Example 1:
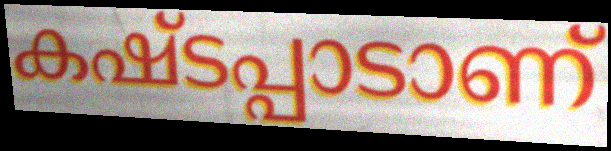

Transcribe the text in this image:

കഷ്ടപ്പാടാണ്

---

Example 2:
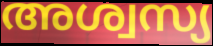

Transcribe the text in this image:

അശ്വസ്യ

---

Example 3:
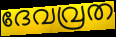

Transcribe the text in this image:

ദേവവ്രത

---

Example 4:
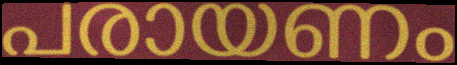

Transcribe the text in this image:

പരായണം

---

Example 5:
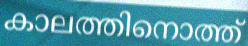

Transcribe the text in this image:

കാലത്തിനൊത്ത്